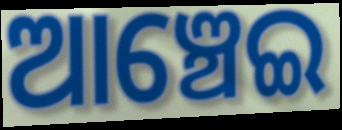
ଆଞ୍ଚେଇ